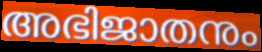
അഭിജാതനും